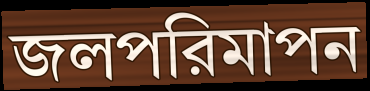
জলপরিমাপন